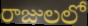
రాజులలో